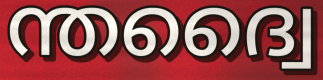
ന്തദ്വൈ